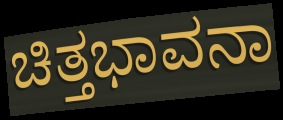
ಚಿತ್ತಭಾವನಾ